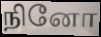
நினோ